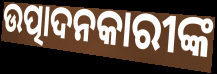
ଉତ୍ପାଦନକାରୀଙ୍କ